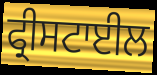
ਫ੍ਰੀਸਟਾਈਲ